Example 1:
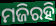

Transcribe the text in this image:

ମଜିରହି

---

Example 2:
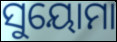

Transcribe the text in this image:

ସୁୟୋମା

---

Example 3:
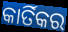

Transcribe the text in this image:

କାର୍ତିକର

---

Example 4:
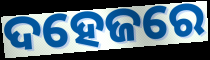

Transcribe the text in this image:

ଦହେଜରେ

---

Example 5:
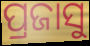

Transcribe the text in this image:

ପ୍ରଜାସୁ